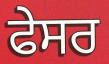
ਫੇਸਰ